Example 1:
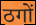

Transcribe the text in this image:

ठगों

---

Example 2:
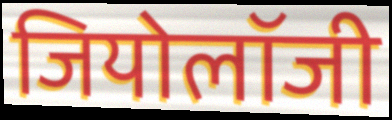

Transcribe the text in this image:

जियोलॉजी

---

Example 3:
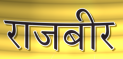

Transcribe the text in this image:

राजबीर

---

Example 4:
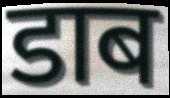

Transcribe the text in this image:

डाब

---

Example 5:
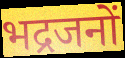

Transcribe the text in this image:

भद्रजनों